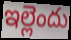
ఇల్లెందు